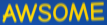
AWSOME